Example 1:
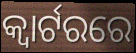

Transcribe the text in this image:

କ୍ୱାର୍ଟରରେ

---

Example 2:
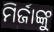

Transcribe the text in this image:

ମିର୍ଜାଙ୍କୁ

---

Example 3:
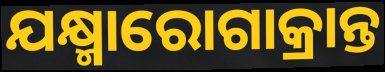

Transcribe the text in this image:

ଯକ୍ଷ୍ମାରୋଗାକ୍ରାନ୍ତ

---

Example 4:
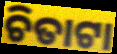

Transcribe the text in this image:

ଚିତାଟା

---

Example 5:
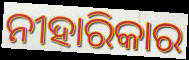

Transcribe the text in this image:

ନୀହାରିକାର